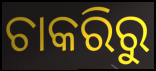
ଚାକରିରୁ